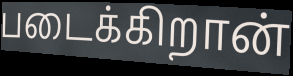
படைக்கிறான்